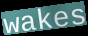
wakes